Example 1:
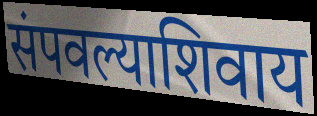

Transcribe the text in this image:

संपवल्याशिवाय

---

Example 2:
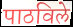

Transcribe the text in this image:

पाठविले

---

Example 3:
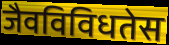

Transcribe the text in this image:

जैवविविधतेस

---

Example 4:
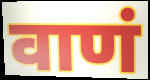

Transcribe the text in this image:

वाणं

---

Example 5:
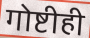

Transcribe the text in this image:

गोष्टीही